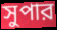
সুপার